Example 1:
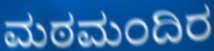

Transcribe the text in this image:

ಮಠಮಂದಿರ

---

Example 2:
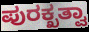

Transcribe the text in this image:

ಪುರಕ್ಖತ್ವಾ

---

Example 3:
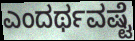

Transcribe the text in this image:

ಎಂದರ್ಥವಷ್ಟೆ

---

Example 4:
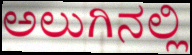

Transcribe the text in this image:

ಅಲುಗಿನಲ್ಲಿ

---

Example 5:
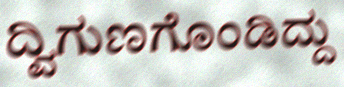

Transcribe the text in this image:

ದ್ವಿಗುಣಗೊಂಡಿದ್ದು